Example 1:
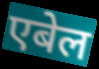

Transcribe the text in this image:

एबेल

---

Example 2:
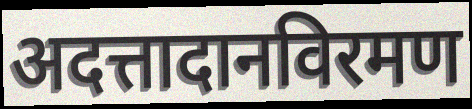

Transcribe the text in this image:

अदत्तादानविरमण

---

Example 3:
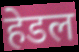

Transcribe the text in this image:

हेडल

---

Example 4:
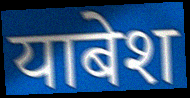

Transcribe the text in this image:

याबेश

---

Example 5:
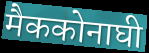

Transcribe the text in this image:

मैककोनाघी